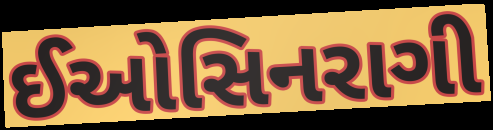
ઈઓસિનરાગી